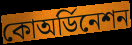
কোঅর্ডিনেশন